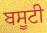
ਬਸੂਟੀ